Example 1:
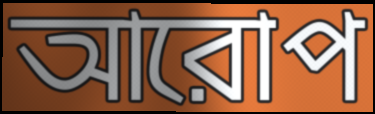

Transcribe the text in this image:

আরোপ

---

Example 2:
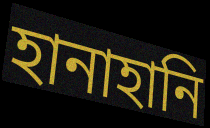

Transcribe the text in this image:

হানাহানি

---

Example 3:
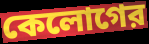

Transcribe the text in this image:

কেলোগের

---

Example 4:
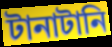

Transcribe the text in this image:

টানাটানি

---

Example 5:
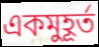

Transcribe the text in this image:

একমুহূর্ত